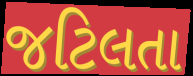
જટિલતા